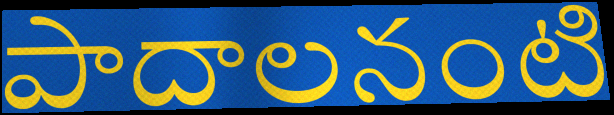
పాదాలనంటి